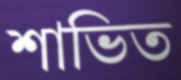
শাভিত